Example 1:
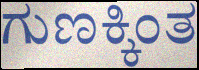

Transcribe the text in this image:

ಗುಣಕ್ಕಿಂತ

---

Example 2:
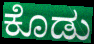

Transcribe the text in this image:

ಕೊಡು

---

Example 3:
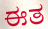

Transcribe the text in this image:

ಈತ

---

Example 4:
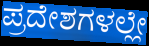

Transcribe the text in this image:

ಪ್ರದೇಶಗಳಲ್ಲೇ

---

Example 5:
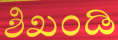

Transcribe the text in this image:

ಶಿಖಂಡಿ